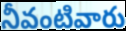
నీవంటివారు